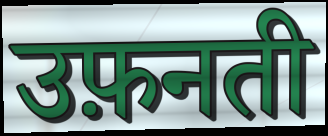
उफ़नती